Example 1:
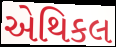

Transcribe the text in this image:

એથિકલ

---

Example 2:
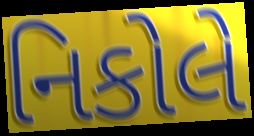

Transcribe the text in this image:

નિકોલે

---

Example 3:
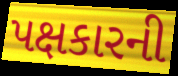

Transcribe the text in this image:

પક્ષકારની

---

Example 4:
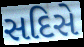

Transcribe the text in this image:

સદિસે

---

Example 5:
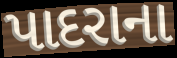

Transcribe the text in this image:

પાદરાના